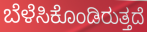
ಬೆಳೆಸಿಕೊಂಡಿರುತ್ತದೆ